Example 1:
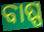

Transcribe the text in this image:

ବାଷ୍ପ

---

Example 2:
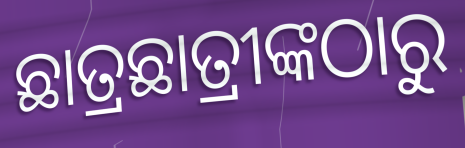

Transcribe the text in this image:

ଛାତ୍ରଛାତ୍ରୀଙ୍କଠାରୁ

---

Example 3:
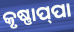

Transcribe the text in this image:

କୃଷ୍ଣାପ୍‌ପା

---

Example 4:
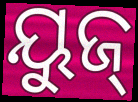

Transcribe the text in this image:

ୟୁଜ୍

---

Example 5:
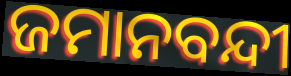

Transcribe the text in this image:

ଜମାନବନ୍ଦୀ